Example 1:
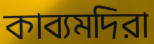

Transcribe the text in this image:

কাব্যমদিরা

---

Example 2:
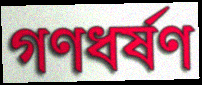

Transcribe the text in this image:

গণধর্ষণ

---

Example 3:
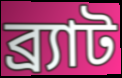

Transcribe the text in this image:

ব্র্যাট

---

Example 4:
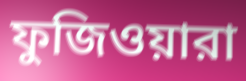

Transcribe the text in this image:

ফুজিওয়ারা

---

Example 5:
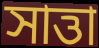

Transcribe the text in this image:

সাত্তা